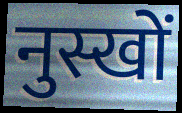
नुस्खों